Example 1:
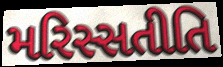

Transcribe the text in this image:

મરિસ્સતીતિ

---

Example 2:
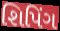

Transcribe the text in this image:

શિપિંગ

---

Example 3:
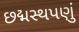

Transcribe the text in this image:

છદ્મસ્થપણું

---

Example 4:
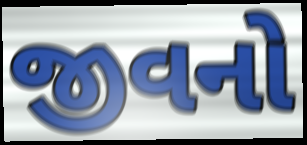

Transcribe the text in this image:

જીવનો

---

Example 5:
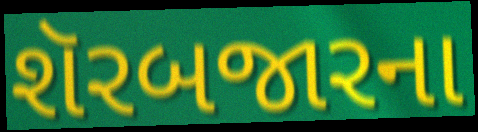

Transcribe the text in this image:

શૅરબજારના